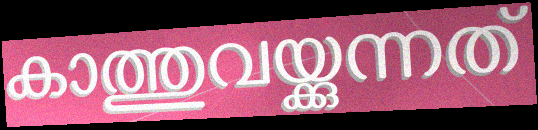
കാത്തുവയ്ക്കുന്നത്